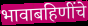
भावाबहिणींचे